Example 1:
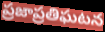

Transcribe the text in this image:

ప్రజాప్రతిఘటన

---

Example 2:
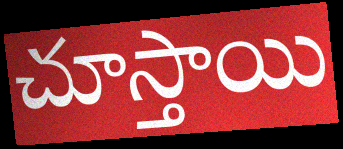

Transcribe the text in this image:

చూస్తాయి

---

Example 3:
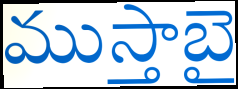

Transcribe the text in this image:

ముస్తాబై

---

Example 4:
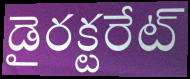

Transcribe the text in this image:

డైరక్టరేట్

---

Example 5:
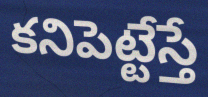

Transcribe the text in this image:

కనిపెట్టేస్తే